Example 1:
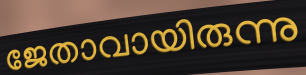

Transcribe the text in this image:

ജേതാവായിരുന്നു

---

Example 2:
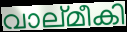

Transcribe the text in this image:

വാല്മീകി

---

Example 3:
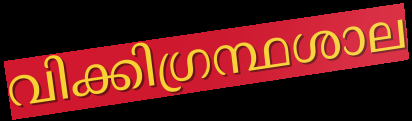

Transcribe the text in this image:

വിക്കിഗ്രന്ഥശാല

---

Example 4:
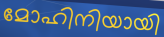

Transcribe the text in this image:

മോഹിനിയായി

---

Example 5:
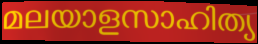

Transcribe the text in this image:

മലയാളസാഹിത്യ